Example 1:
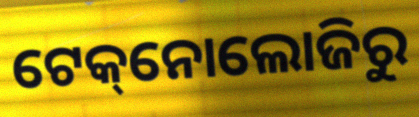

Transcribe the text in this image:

ଟେକ୍‌ନୋଲୋଜିରୁ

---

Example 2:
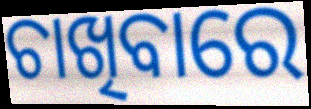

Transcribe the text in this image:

ଚାଖିବାରେ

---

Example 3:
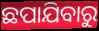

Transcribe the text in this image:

ଛପାଯିବାରୁ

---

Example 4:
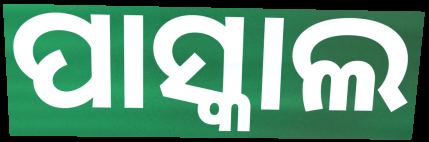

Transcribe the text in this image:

ପାସ୍କାଲ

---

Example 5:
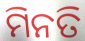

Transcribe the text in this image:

ମିନତି